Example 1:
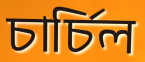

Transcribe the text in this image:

চাৰ্চিল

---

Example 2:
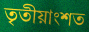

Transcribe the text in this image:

তৃতীয়াংশত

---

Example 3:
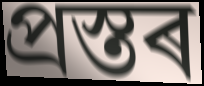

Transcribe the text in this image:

প্ৰস্তৰ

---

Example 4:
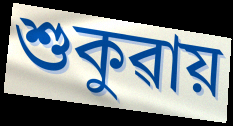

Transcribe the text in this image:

শুকুৱায়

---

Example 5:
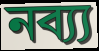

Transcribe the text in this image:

নব্য্য